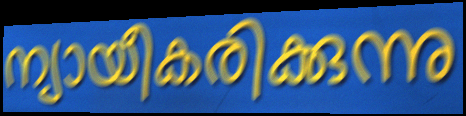
ന്യായീകരിക്കുന്നു